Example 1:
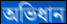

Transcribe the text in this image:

অভিধান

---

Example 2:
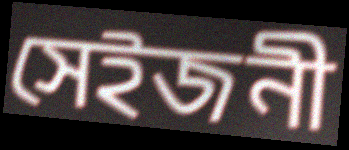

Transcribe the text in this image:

সেইজনী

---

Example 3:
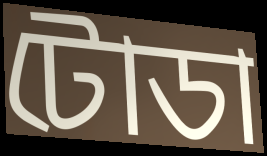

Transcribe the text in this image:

টোডা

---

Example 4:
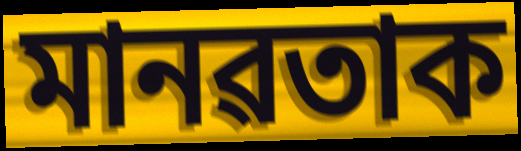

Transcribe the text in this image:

মানৱতাক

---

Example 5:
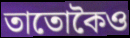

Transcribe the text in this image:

তাতোকৈও